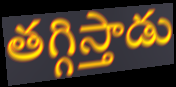
తగ్గిస్తాడు